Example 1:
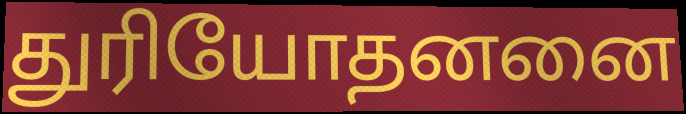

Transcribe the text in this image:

துரியோதனனை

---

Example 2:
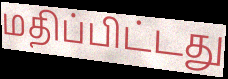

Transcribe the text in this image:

மதிப்பிட்டது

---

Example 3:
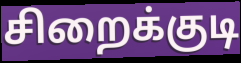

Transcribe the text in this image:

சிறைக்குடி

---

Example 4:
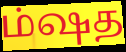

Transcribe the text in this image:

ம்ஷத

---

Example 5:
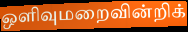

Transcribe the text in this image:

ஒளிவுமறைவின்றிக்